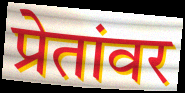
प्रेतांवर